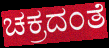
ಚಕ್ರದಂತೆ